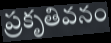
ప్రకృతివనం